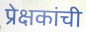
प्रेक्षकांची